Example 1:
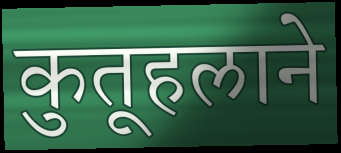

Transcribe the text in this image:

कुतूहलाने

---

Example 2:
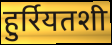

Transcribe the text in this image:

हुर्रियतशी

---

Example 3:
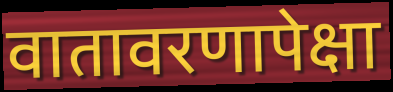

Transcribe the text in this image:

वातावरणापेक्षा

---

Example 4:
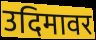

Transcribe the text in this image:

उदिमावर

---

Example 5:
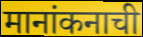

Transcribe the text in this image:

मानांकनाची